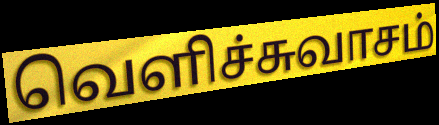
வெளிச்சுவாசம்